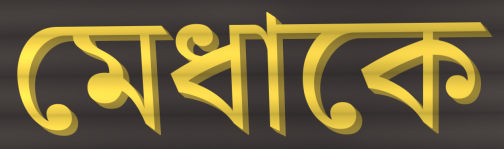
মেধাকে